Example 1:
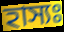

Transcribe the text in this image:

হাস্যঃ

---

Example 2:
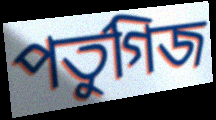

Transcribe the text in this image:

পর্তুগিজ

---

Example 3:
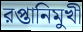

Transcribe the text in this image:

রপ্তানিমুখী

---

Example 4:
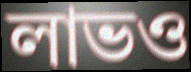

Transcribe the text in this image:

লাভও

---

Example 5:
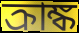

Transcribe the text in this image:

ক্রাঙ্ক